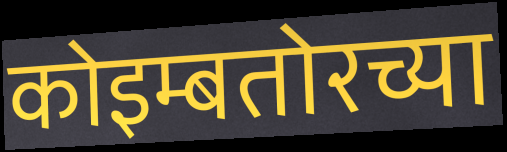
कोइम्बतोरच्या